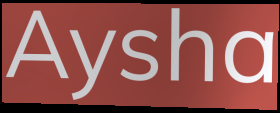
Aysha